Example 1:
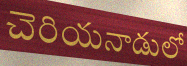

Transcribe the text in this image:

చెరియనాడులో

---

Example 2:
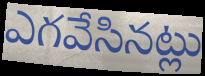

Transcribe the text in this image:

ఎగవేసినట్లు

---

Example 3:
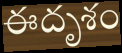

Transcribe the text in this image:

ఈదృశం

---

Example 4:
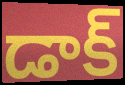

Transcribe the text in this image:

డాక్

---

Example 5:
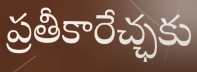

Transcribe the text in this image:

ప్రతీకారేచ్ఛకు